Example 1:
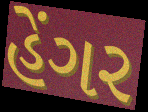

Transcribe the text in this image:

હેંગર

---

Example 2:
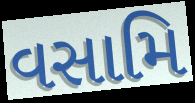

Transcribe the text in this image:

વસામિ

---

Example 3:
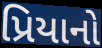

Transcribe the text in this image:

પ્રિયાનો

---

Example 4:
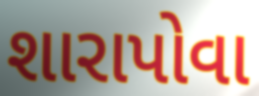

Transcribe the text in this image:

શારાપોવા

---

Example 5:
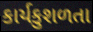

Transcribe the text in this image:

કાર્યકુશળતા